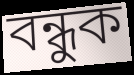
বন্ধুক